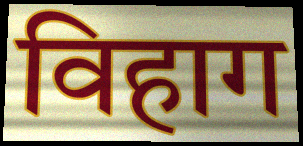
विहाग